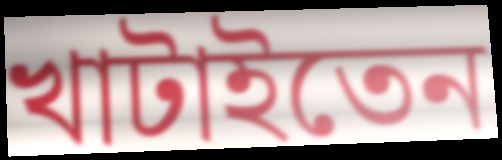
খাটাইতেন